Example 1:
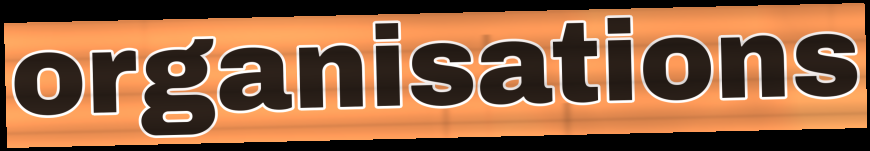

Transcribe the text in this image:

organisations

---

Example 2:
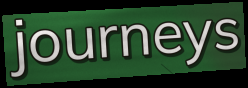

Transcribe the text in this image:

journeys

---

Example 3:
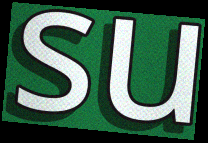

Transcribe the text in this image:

su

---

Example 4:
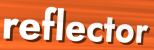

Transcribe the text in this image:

reflector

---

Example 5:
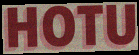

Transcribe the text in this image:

HOTU